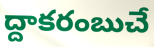
ద్దాకరంబుచే